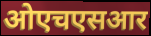
ओएचएसआर